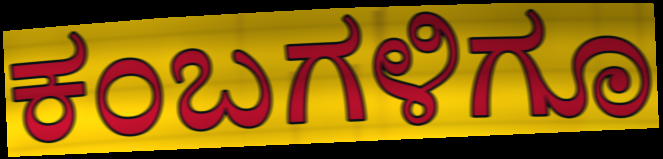
ಕಂಬಗಳಿಗೂ